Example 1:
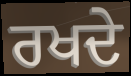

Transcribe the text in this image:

ਰਖਦੇ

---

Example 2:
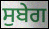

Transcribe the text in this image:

ਸੁਬੇਗ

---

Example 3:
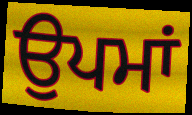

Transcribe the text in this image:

ਉਪਮਾਂ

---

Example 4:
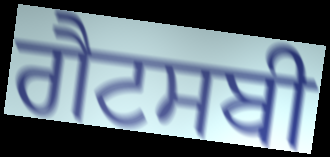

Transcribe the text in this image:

ਗੈਟਸਬੀ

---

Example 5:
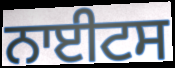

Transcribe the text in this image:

ਨਾਈਟਸ